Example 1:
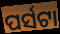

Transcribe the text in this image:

ପର୍ସଟା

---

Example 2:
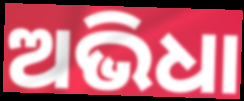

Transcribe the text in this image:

ଅଭିଧା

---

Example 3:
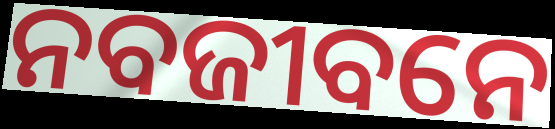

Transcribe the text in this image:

ନବଜୀବନେ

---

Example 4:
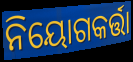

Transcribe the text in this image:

ନିୟୋଗକର୍ତ୍ତା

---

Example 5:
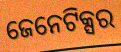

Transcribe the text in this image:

ଜେନେଟିକ୍ସର